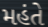
મહંતે